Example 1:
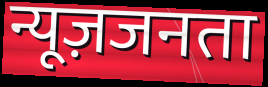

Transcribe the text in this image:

न्यूज़जनता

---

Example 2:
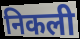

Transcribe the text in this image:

निकली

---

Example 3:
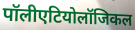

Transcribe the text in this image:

पॉलीएटियोलॉजिकल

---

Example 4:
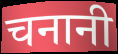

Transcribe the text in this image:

चनानी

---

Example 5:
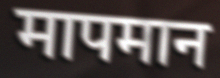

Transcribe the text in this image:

मापमान